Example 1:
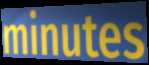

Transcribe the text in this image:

minutes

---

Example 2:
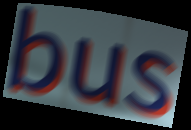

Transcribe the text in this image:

bus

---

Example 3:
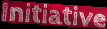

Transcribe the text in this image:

Initiative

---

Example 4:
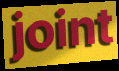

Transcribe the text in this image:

joint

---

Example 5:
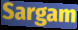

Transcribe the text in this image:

Sargam